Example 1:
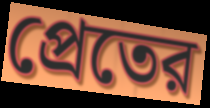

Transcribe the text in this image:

প্রেতের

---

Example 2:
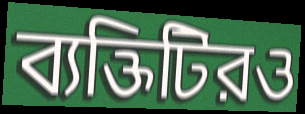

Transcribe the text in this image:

ব্যক্তিটিরও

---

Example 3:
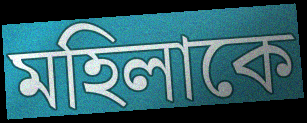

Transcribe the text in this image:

মহিলাকে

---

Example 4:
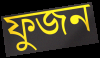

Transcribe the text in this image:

ফুজন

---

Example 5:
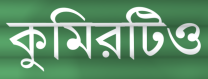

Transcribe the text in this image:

কুমিরটিও